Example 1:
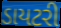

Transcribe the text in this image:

ડાયટરી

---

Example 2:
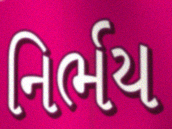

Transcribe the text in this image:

નિર્ભય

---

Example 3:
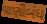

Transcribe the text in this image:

પાણીબંધ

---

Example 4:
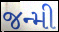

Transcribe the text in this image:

જન્મી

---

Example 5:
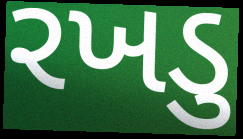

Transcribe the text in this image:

રખડુ